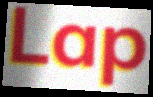
Lap